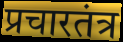
प्रचारतंत्र